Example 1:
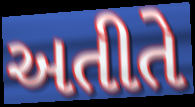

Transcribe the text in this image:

અતીતે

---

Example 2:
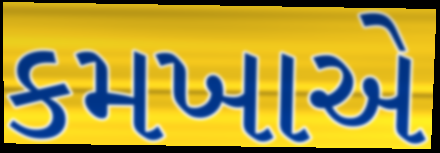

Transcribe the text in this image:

કમખાએ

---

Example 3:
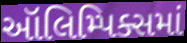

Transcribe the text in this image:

ઑલિમ્પિક્સમાં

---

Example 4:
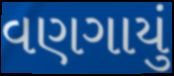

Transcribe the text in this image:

વણગાયું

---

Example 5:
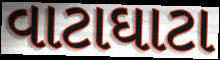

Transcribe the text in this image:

વાટાઘાટા